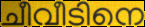
ചീവീടിനെ